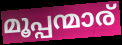
മൂപ്പന്മാര്